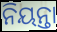
ନିୟନ୍ତା